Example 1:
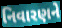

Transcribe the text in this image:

નિવારણને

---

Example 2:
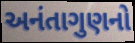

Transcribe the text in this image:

અનંતાગુણનો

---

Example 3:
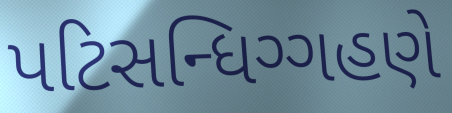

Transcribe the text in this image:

પટિસન્ધિગ્ગહણે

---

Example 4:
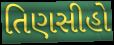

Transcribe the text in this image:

તિણસીહો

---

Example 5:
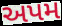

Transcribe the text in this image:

અપમ